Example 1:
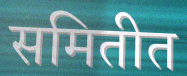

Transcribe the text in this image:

समितीत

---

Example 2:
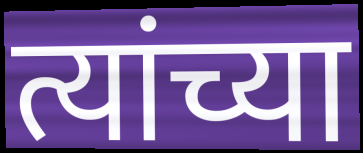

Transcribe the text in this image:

त्यांच्या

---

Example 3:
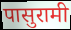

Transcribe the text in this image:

पासुरामी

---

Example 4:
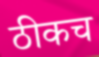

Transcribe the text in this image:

ठीकच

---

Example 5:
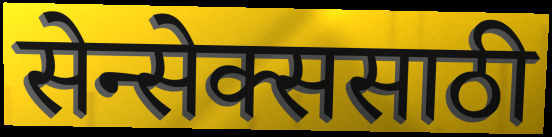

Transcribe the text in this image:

सेन्सेक्ससाठी